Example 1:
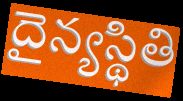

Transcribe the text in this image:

దైన్యస్థితి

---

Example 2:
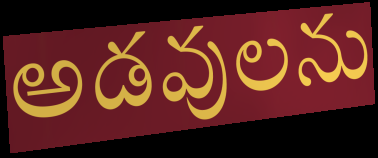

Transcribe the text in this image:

అడవులను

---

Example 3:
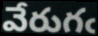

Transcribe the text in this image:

వేరుగఁ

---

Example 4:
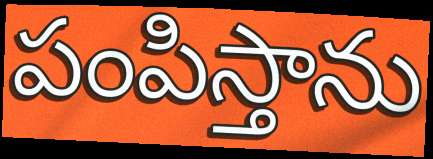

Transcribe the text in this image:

పంపిస్తాను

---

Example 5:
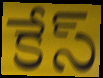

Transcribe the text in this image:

కేస్